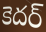
కెదర్